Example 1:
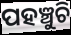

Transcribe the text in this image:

ପହଞ୍ଚୁଚି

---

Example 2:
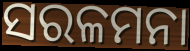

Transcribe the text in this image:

ସରଳମନା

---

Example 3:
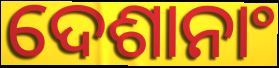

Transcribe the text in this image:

ଦେଶାନାଂ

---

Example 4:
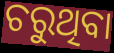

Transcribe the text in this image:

ଚରୁଥିବା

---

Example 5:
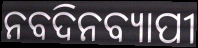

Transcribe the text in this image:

ନବଦିନବ୍ୟାପୀ